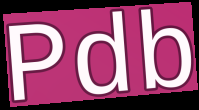
Pdb